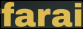
farai